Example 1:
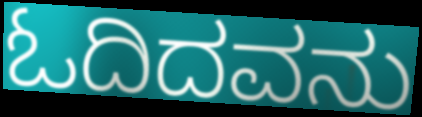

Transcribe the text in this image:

ಓದಿದವನು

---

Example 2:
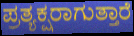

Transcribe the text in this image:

ಪ್ರತ್ಯಕ್ಷರಾಗುತ್ತಾರೆ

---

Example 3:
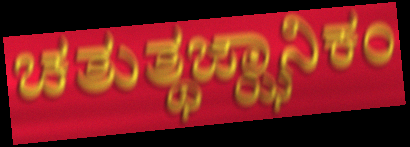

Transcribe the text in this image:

ಚತುತ್ಥಜ್ಝಾನಿಕಂ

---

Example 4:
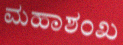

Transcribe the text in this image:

ಮಹಾಶಂಖ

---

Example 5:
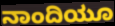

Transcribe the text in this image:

ನಾಂದಿಯೂ